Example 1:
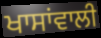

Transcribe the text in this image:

ਖਾਸਾਂਵਾਲੀ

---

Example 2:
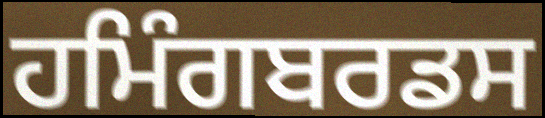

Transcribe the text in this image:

ਹਮਿੰਗਬਰਡਸ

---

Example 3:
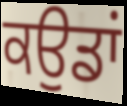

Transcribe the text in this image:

ਕਉਡਾਂ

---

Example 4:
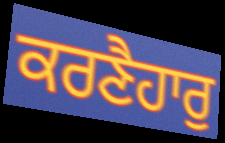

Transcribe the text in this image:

ਕਰਣੈਹਾਰੁ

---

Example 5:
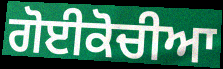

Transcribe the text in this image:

ਗੋਈਕੋਚੀਆ